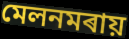
মেলনমৰায়